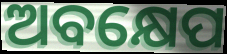
ଅବକ୍ଷେପ